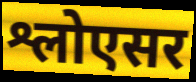
श्लोएसर